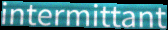
intermittant